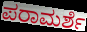
ಪರಾಮರ್ಶೆ